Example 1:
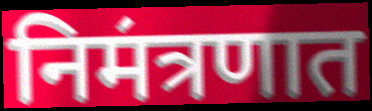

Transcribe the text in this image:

निमंत्रणात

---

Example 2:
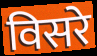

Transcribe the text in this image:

विसरे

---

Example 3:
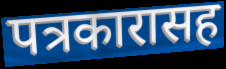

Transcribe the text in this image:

पत्रकारासह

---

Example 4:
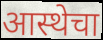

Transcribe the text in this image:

आस्थेचा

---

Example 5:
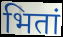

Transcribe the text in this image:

भितां